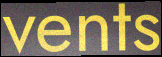
vents